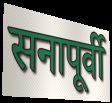
सनापूर्वी